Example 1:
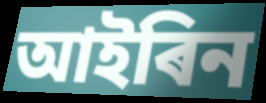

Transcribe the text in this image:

আইৰিন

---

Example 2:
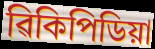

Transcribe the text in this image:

ৱিকিপিডিয়া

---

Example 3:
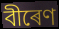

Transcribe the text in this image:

বীৰেণ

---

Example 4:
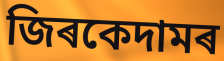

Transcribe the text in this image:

জিৰকেদামৰ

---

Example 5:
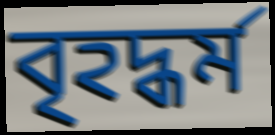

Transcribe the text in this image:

বৃহদ্ধৰ্ম